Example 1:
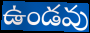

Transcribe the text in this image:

ఉండవు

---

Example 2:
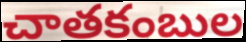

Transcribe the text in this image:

చాతకంబుల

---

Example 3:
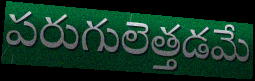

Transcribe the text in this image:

పరుగులెత్తడమే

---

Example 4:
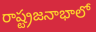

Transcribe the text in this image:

రాష్ట్రజనాభాలో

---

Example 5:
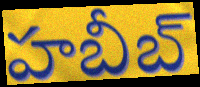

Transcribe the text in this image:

హబీబ్